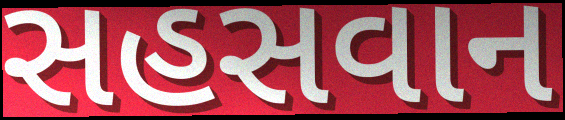
સહસવાન